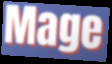
Mage